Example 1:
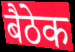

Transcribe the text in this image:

बैठेक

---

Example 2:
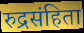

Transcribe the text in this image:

रुद्रसंहिता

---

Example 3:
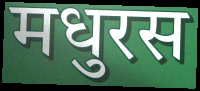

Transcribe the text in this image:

मधुरस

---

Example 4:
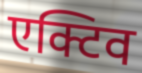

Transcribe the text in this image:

एक्टिव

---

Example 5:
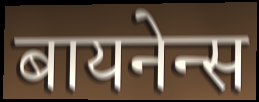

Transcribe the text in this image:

बायनेन्स